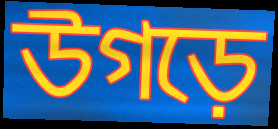
উগড়ে